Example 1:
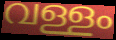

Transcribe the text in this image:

വള്ളം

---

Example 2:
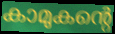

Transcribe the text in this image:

കാമുകന്റെ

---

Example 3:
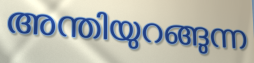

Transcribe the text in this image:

അന്തിയുറങ്ങുന്ന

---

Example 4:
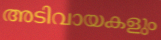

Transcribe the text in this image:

അടിവായകളും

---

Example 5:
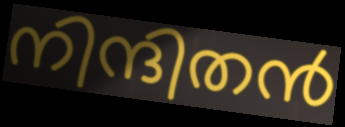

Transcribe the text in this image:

നിന്ദിതൻ